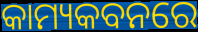
କାମ୍ୟକବନରେ